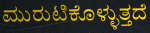
ಮುರುಟಿಕೊಳ್ಳುತ್ತದೆ